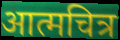
आत्मचित्र